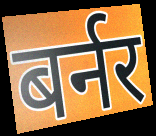
बर्नर